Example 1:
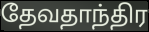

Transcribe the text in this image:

தேவதாந்திர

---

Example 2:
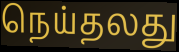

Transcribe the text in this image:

நெய்தலது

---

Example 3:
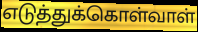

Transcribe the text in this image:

எடுத்துக்கொள்வாள்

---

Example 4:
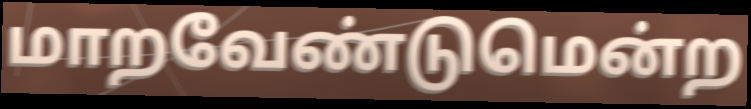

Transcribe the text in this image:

மாறவேண்டுமென்ற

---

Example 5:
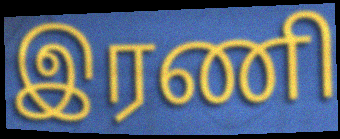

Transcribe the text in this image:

இரணி